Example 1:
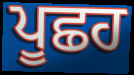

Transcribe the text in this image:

ਪੂਛਹ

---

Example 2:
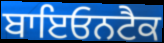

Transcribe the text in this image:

ਬਾਇਓਨਟੈਕ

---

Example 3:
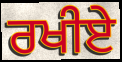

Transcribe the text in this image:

ਰਖੀਏ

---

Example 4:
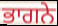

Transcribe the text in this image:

ਭਾਗਨੇ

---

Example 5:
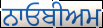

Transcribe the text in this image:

ਨਾਓਬੀਅਮ